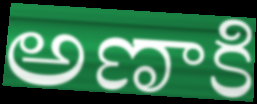
అణాకి